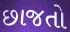
છાજતો